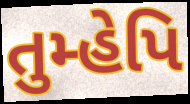
તુમ્હેપિ